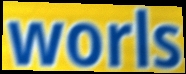
worls